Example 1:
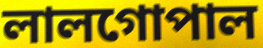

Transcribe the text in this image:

লালগোপাল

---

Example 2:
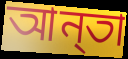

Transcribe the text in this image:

আন্‌তা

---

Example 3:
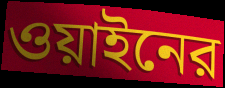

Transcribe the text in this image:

ওয়াইনের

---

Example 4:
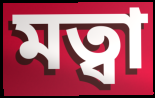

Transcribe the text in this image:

মত্বা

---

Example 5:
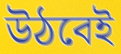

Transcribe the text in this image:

উঠবেই